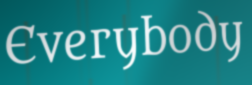
Everybody